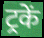
ट्रकें